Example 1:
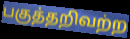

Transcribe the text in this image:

பகுத்தறிவற்ற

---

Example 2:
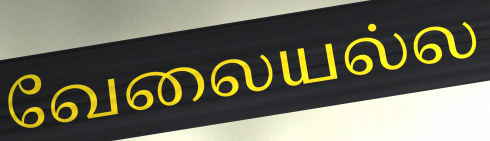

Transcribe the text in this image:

வேலையல்ல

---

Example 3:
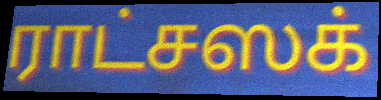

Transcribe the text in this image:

ராட்சஸக்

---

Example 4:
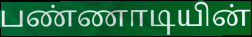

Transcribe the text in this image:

பண்ணாடியின்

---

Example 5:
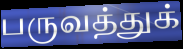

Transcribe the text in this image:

பருவத்துக்